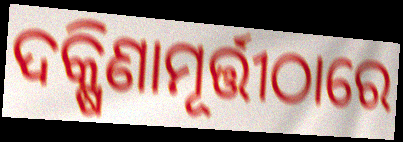
ଦକ୍ଷିଣାମୂର୍ତ୍ତୀଠାରେ